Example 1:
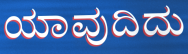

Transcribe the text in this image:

ಯಾವುದಿದು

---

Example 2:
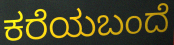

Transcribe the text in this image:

ಕರೆಯಬಂದೆ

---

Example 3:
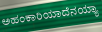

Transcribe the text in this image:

ಅಹಂಕಾರಿಯಾದೆನಯ್ಯಾ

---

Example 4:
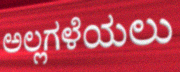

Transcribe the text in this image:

ಅಲ್ಲಗಳೆಯಲು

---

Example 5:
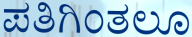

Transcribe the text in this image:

ಪತಿಗಿಂತಲೂ